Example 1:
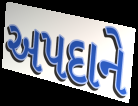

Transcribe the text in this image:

અપદાને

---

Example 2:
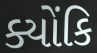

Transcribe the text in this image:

ક્યોંકિ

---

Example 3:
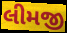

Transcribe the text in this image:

લીમજી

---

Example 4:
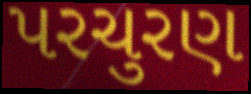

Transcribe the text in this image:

પરચુરણ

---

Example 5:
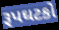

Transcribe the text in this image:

રૂપઘટકો